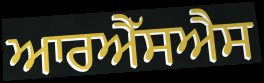
ਆਰਐੱਸਐਸ